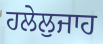
ਹਲੇਲੁਜਾਹ